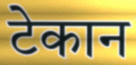
टेकान